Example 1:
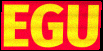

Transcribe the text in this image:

EGU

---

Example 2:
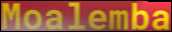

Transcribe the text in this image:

Moalemba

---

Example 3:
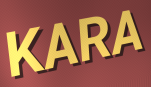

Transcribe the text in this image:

KARA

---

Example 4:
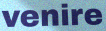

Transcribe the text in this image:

venire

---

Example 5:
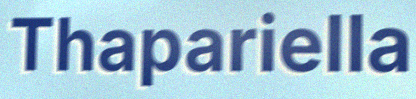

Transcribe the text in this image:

Thapariella